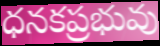
ధనకప్రభువు